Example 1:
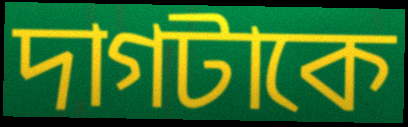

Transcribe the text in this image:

দাগটাকে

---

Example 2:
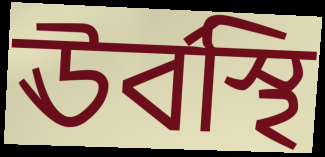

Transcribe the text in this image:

ঊর্বস্থি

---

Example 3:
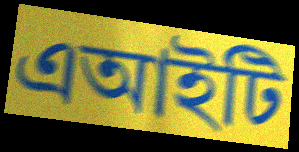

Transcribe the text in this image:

এআইটি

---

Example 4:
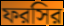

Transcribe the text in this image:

ফরসির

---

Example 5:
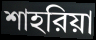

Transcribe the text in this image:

শাহরিয়া